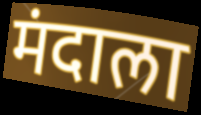
मंदाला